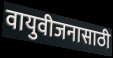
वायुवीजनासाठी